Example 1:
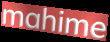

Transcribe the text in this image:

mahime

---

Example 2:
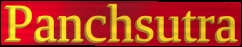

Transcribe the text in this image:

Panchsutra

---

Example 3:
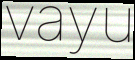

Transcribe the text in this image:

vayu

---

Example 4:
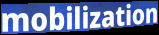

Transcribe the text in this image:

mobilization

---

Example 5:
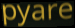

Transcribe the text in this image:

pyare